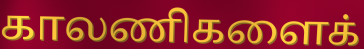
காலணிகளைக்